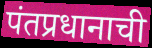
पंतप्रधानाची